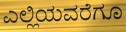
ಎಲ್ಲಿಯವರೆಗೂ